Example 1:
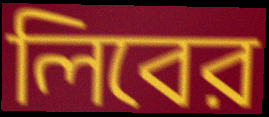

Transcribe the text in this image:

লিবের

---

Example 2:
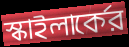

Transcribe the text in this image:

স্কাইলার্কের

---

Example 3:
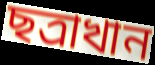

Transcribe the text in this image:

ছত্রাখান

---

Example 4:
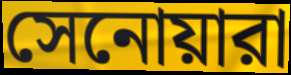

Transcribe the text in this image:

সেনোয়ারা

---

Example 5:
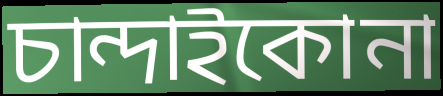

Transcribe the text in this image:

চান্দাইকোনা